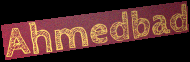
Ahmedbad